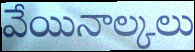
వేయినాల్కలు